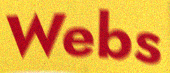
Webs